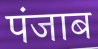
पंजाब